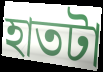
হাতটা